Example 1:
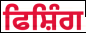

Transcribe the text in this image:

ਫਿਸ਼ਿੰਗ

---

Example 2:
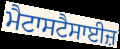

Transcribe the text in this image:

ਮੈਟਾਸਟੈਸਾਈਜ਼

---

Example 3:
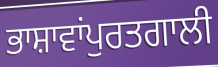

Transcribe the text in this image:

ਭਾਸ਼ਾਵਾਂਪੁਰਤਗਾਲੀ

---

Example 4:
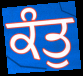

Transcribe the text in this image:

ਕੰਤੁ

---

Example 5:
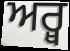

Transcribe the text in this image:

ਅਰ੍ਥ